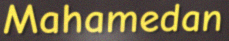
Mahamedan